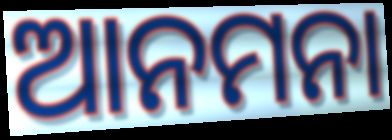
ଆନମନା